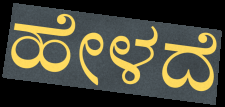
ಹೇಳದೆ